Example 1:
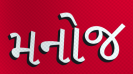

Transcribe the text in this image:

મનોજ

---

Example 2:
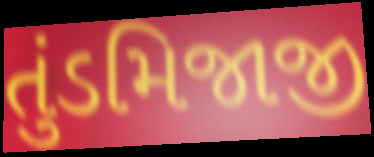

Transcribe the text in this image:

તુંડમિજાજી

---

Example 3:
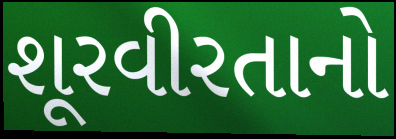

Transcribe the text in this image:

શૂરવીરતાનો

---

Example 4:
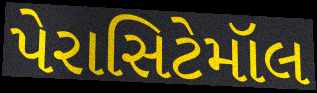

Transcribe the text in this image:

પેરાસિટેમૉલ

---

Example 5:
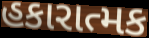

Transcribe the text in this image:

હકારાત્મક